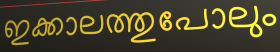
ഇക്കാലത്തുപോലും